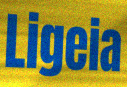
Ligeia